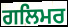
ਗਲਿਮਰ